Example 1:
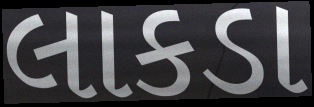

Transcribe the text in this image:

લાકડા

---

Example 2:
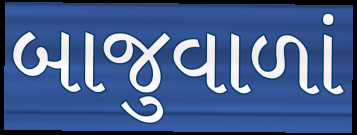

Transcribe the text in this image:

બાજુવાળાં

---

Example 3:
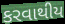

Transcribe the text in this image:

કરવાથીય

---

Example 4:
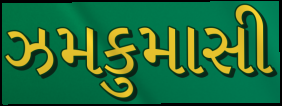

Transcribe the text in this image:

ઝમકુમાસી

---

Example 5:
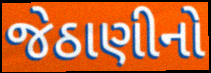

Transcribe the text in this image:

જેઠાણીનો